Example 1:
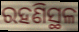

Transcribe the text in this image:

ରହଣିସ୍ଥଳ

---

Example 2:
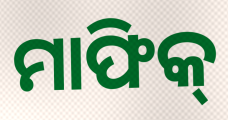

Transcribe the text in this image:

ମାଫିକ୍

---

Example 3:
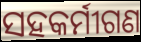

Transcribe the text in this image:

ସହକର୍ମୀଗଣ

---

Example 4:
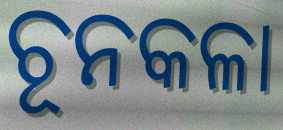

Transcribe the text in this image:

ଚୂନକଳା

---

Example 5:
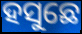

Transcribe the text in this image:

ହସୁଛେ